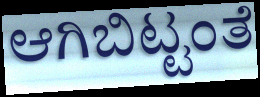
ಆಗಿಬಿಟ್ಟಂತೆ